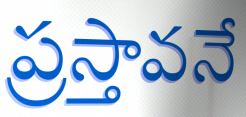
ప్రస్తావనే